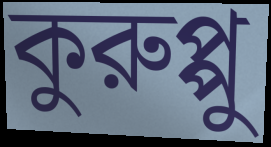
কুরুপ্পু